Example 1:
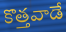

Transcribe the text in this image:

కొత్తవాడే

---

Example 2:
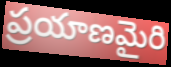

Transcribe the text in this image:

ప్రయాణమైరి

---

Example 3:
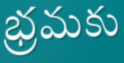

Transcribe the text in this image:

భ్రమకు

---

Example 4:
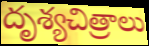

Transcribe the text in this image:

దృశ్యచిత్రాలు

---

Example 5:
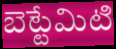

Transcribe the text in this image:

బెట్టేమిటి